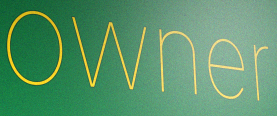
owner